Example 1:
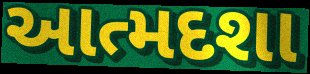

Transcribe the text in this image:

આત્મદશા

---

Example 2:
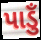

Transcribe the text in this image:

પાડુઁ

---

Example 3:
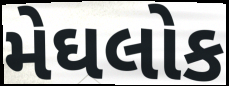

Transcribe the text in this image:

મેઘલોક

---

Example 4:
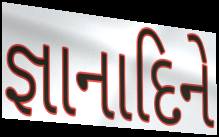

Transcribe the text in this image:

જ્ઞાનાદિને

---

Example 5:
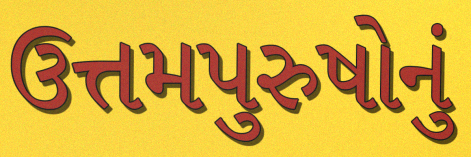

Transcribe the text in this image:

ઉત્તમપુરુષોનું